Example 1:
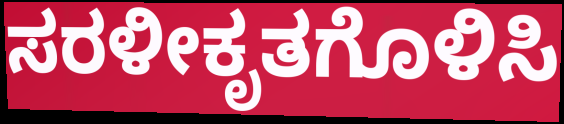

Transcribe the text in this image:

ಸರಳೀಕೃತಗೊಳಿಸಿ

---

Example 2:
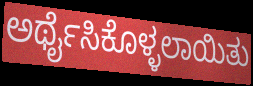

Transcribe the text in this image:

ಅರ್ಥೈಸಿಕೊಳ್ಳಲಾಯಿತು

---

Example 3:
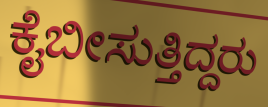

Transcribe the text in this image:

ಕೈಬೀಸುತ್ತಿದ್ದರು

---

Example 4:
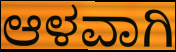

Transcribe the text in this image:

ಆಳವಾಗಿ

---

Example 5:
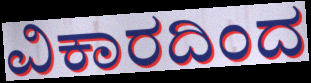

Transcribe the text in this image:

ವಿಕಾರದಿಂದ